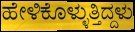
ಹೇಳಿಕೊಳ್ಳುತ್ತಿದ್ದಳು